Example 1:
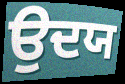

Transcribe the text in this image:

ਉਦਯ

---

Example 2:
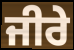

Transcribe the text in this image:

ਜੀਰੇ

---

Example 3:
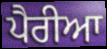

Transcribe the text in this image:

ਪੈਰੀਆ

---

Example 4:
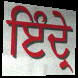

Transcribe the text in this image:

ਇੰਦ੍ਰੇ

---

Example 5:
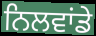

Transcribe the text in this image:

ਨਿਲਵਾਂਡੇ